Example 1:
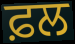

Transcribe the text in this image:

ਫ਼ਲ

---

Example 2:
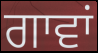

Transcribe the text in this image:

ਗਾਵਾਂ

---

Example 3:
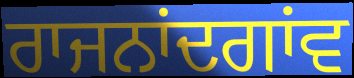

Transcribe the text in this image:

ਰਾਜਨਾਂਦਗਾਂਵ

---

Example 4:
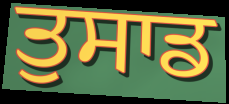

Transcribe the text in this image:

ਤੁਸਾਡ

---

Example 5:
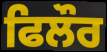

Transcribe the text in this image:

ਫਿਲੌਰ